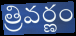
త్రివర్ణం